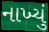
નાખ્યું